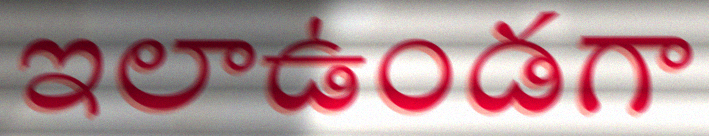
ఇలాఉండగా